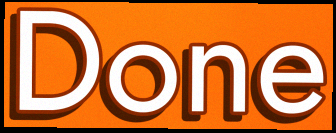
Done